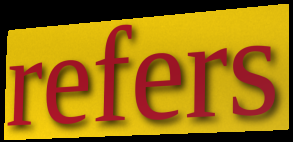
refers